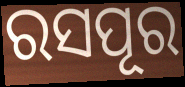
ରସପୂର